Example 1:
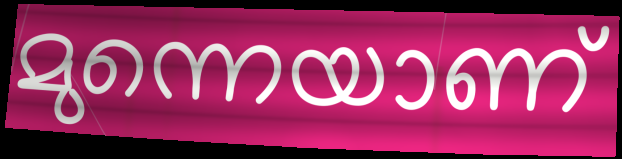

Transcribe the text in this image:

മുന്നെയാണ്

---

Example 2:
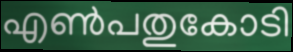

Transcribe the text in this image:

എൺപതുകോടി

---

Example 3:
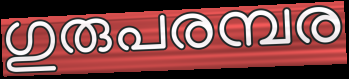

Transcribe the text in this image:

ഗുരുപരമ്പര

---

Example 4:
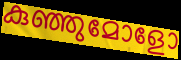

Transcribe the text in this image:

കുഞ്ഞുമോളോ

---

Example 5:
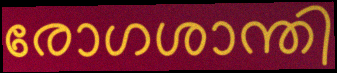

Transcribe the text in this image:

രോഗശാന്തി